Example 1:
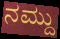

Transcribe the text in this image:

ನಮ್ದು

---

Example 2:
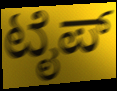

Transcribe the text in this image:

ಟೈಪ್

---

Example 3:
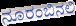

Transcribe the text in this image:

ನೂರಂಬಿನಲಿ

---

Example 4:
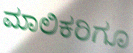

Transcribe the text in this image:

ಮಾಲಿಕರಿಗೂ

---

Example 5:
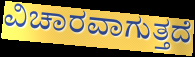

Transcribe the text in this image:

ವಿಚಾರವಾಗುತ್ತದೆ